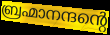
ബ്രഹ്മാനന്ദന്റെ